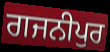
ਗਜਨੀਪੁਰ